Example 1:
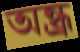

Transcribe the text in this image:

অন্ধ্র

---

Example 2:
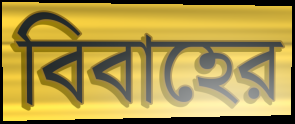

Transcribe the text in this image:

বিবাহের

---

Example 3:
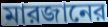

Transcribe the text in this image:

মারজানের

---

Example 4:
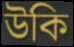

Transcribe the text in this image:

উকি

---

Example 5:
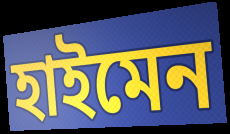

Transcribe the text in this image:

হাইমেন